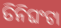
ତିନିଘଂଟା